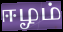
ஈழம்